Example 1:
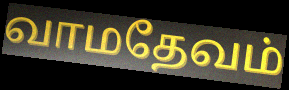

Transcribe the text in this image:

வாமதேவம்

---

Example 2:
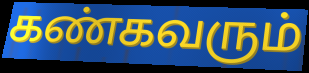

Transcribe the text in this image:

கண்கவரும்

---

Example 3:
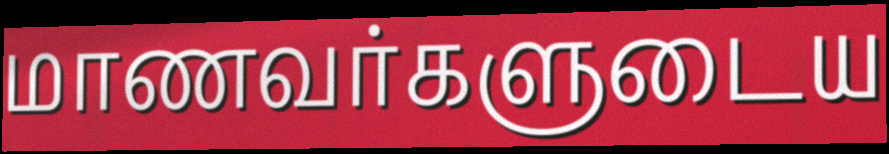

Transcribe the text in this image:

மாணவர்களுடைய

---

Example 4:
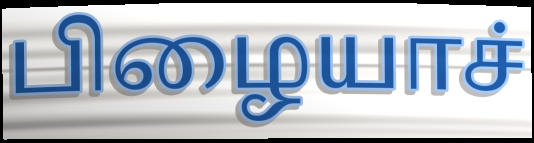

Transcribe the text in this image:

பிழையாச்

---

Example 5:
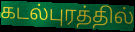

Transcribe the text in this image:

கடல்புரத்தில்